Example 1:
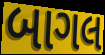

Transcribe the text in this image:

બાગલ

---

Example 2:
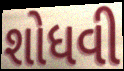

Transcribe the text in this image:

શોધવી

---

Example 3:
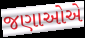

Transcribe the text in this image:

જણાઓએ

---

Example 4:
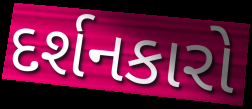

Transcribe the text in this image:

દર્શનકારો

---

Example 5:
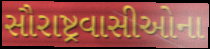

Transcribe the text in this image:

સૌરાષ્ટ્રવાસીઓના